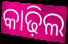
କାଢ଼ିଲ